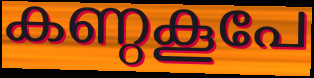
കണ്ഠകൂപേ